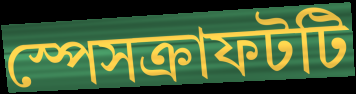
স্পেসক্রাফটটি